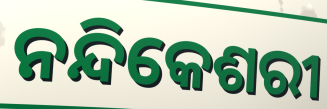
ନନ୍ଦିକେଶରୀ